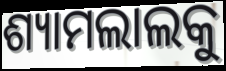
ଶ୍ୟାମଲାଲକୁ